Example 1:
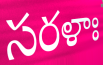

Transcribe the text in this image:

సరళాః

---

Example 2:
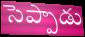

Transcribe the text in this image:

సెప్పాడు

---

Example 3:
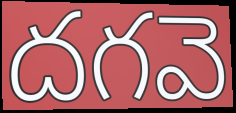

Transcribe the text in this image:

దగవె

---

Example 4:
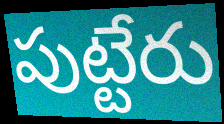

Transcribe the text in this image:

పుట్టేరు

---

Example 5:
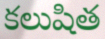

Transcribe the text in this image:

కలుషిత